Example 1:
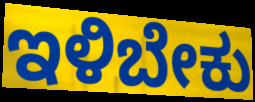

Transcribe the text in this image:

ಇಳಿಬೇಕು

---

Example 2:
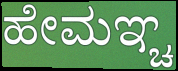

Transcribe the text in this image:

ಹೇಮಞ್ಚ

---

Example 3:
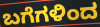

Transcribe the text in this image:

ಬಗೆಗಳಿಂದ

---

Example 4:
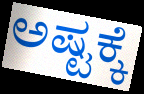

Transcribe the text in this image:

ಅಷ್ಟಕ್ಕೆ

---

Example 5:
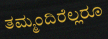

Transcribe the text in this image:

ತಮ್ಮಂದಿರೆಲ್ಲರೂ